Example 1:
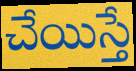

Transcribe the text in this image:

చేయిస్తే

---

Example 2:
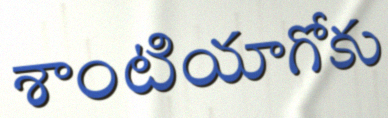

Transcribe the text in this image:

శాంటియాగోకు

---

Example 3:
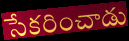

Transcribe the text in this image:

సేకరించాడు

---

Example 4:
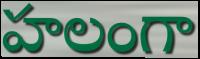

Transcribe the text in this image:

హలంగా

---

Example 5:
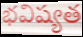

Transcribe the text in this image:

భవిష్యత